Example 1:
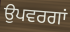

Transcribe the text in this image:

ਉਪਵਰਗਾਂ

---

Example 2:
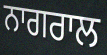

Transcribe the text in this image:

ਨਾਗਰਾਲ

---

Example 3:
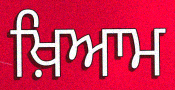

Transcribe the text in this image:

ਖ਼ਿਆਮ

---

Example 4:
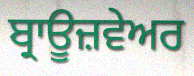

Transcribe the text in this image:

ਬ੍ਰਾਊਜ਼ਵੇਅਰ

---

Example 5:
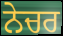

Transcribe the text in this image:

ਨੇਚਰ